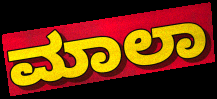
ಮಾಲಾ